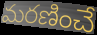
మరణించే